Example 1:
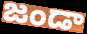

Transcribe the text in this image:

జండా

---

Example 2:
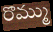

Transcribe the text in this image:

రొమ్ము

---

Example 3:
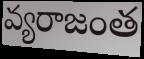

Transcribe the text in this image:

వ్యరాజంత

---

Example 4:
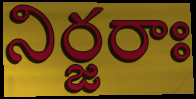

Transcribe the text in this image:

నిర్జరాః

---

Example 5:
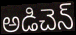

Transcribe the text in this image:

అడిచెన్